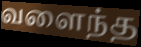
வளைந்த